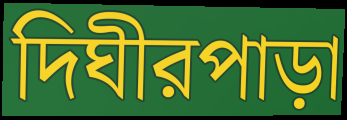
দিঘীরপাড়া